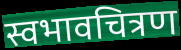
स्वभावचित्रण